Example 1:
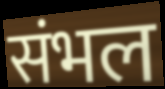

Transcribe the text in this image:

संभल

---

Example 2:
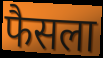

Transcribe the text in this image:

फैसला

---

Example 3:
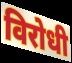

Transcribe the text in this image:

विरोधी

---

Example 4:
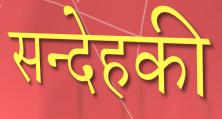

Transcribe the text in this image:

सन्देहकी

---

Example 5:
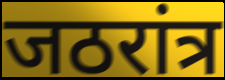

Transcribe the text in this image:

जठरांत्र